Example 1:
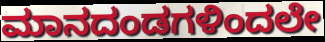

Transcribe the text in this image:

ಮಾನದಂಡಗಳಿಂದಲೇ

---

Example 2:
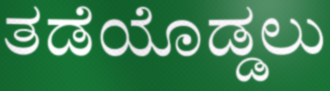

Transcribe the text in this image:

ತಡೆಯೊಡ್ಡಲು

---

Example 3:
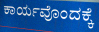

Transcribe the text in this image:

ಕಾರ್ಯವೊಂದಕ್ಕೆ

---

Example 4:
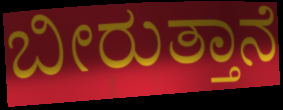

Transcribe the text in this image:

ಬೀರುತ್ತಾನೆ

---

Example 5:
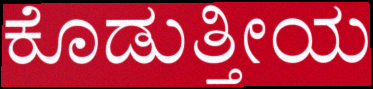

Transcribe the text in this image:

ಕೊಡುತ್ತೀಯ